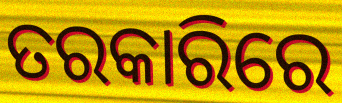
ତରକାରିରେ